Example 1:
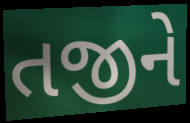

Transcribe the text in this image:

તજીને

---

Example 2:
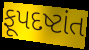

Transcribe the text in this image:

ફૂપદષ્ટાંત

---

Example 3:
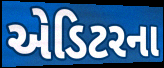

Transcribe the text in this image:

એડિટરના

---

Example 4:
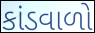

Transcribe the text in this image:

કાંડવાળો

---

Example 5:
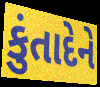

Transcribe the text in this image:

કુંતાદેને